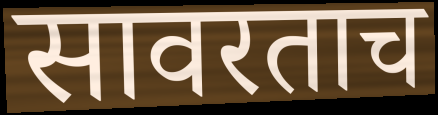
सावरताच